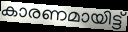
കാരണമായിട്ട്